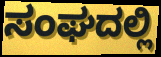
ಸಂಘದಲ್ಲಿ